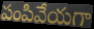
పంపివేయగా